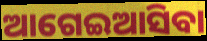
ଆଗେଇଆସିବା